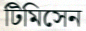
টিমিসেন